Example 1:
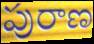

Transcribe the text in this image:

పురాణ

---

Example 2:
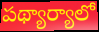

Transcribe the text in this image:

పథ్యార్యాలో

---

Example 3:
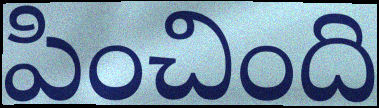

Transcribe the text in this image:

పించింది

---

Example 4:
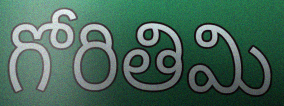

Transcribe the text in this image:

గోరితిమి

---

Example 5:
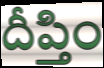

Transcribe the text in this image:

దీప్తిం